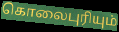
கொலைபுரியும்